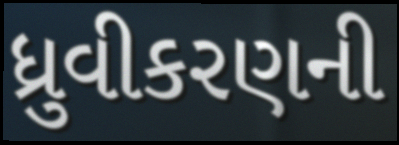
ધ્રુવીકરણની